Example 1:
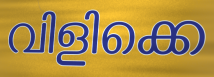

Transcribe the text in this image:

വിളിക്കെ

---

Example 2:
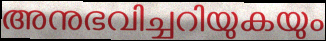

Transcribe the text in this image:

അനുഭവിച്ചറിയുകയും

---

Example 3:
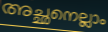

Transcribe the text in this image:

അച്ഛനെല്ലാം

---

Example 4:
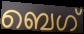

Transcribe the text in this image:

ബെഗ്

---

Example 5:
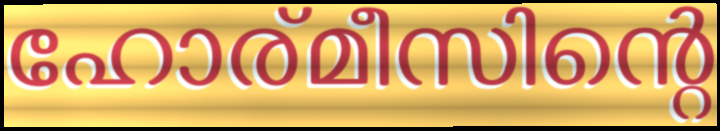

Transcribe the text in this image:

ഹോര്മീസിന്റെ